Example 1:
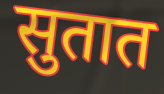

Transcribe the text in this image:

सुतात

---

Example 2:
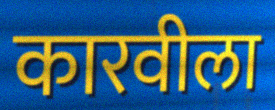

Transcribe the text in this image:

कारवीला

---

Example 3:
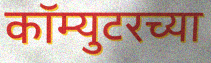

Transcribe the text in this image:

कॉम्युटरच्या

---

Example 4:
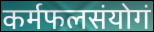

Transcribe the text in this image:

कर्मफलसंयोगं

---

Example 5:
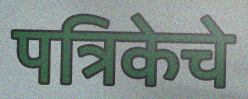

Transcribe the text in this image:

पत्रिकेचे